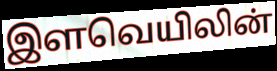
இளவெயிலின்